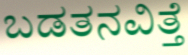
ಬಡತನವಿತ್ತೆ